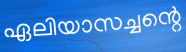
ഏലിയാസച്ചന്റെ